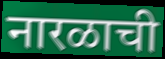
नारळाची